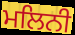
ਮਲਿਨੀ